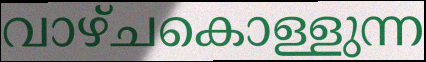
വാഴ്ചകൊള്ളുന്ന